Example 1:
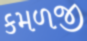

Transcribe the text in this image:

કમળજી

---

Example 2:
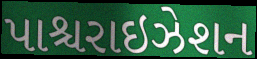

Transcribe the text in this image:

પાશ્ચરાઇઝેશન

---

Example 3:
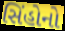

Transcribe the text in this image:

સિંહોનો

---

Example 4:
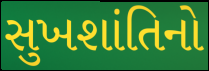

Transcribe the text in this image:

સુખશાંતિનો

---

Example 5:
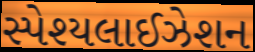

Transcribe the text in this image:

સ્પેશ્યલાઈઝેશન